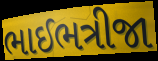
ભાઈભત્રીજા